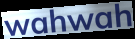
wahwah